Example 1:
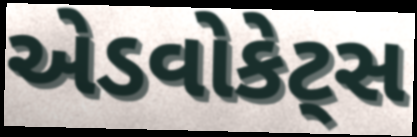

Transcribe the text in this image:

એડવોકેટ્સ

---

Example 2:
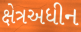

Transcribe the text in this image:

ક્ષેત્રઅધીન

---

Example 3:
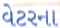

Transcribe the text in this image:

વેટરના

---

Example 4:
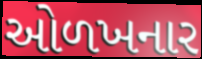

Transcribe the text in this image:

ઓળખનાર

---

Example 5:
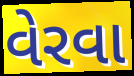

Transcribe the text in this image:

વેરવા